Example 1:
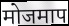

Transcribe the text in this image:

मोजमाप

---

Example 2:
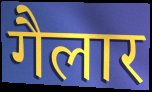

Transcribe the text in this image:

गैलार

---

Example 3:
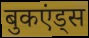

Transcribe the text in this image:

बुकएंड्स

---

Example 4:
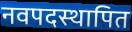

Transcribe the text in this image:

नवपदस्थापित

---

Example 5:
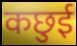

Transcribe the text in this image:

कछुई